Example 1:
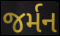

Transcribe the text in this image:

જર્મન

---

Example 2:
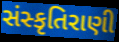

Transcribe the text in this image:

સંસ્કૃતિરાણી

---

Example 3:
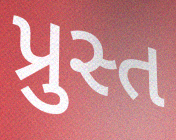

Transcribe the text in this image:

પ્રુસ્ત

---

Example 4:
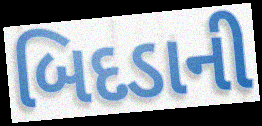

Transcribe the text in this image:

બિદડાની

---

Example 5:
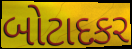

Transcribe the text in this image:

બોટાદકર